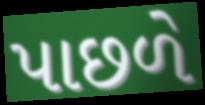
પાછળે